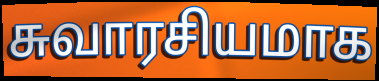
சுவாரசியமாக